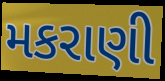
મકરાણી